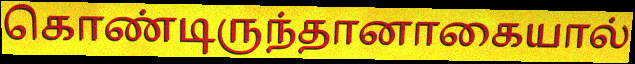
கொண்டிருந்தானாகையால்